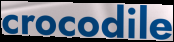
crocodile